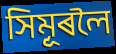
সিমূৰলৈ